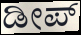
ಡೀಪ್